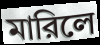
মারিলে